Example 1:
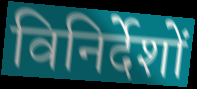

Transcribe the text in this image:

विनिर्देशों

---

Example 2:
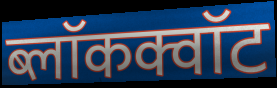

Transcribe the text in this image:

ब्लॉकक्वॉट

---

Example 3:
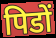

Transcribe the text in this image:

पिडों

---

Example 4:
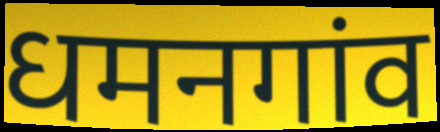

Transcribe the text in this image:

धमनगांव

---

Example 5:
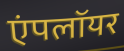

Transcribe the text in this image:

एंपलॉयर